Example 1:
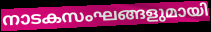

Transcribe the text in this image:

നാടകസംഘങ്ങളുമായി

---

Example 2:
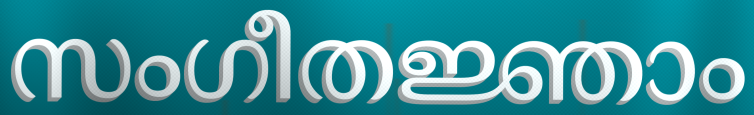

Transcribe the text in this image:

സംഗീതജ്ഞാം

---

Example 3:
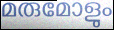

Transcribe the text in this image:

മരുമോളും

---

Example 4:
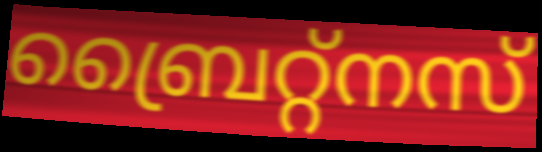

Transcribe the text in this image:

ബ്രൈറ്റ്നസ്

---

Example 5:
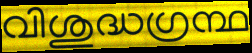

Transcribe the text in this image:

വിശുദ്ധഗ്രന്ഥ